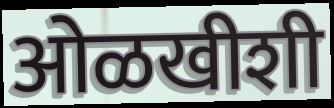
ओळखीशी